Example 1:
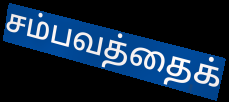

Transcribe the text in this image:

சம்பவத்தைக்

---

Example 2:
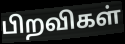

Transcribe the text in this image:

பிறவிகள்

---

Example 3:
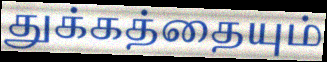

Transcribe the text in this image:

துக்கத்தையும்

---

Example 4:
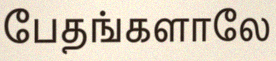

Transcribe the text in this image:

பேதங்களாலே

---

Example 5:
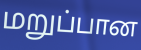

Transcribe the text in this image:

மறுப்பான